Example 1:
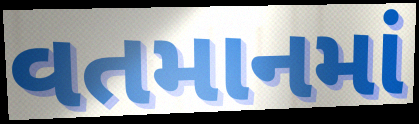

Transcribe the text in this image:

વતમાનમાં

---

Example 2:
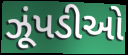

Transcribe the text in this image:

ઝૂંપડીઓ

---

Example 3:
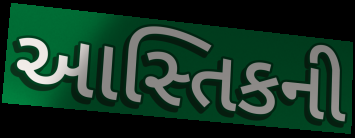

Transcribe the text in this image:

આસ્તિકની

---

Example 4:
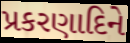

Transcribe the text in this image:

પ્રકરણાદિને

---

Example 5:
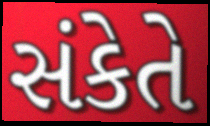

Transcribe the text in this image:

સંકેતે